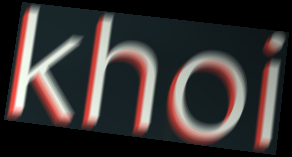
khoi